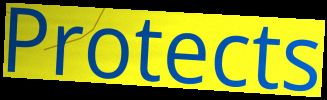
Protects